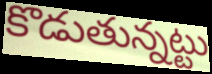
కొడుతున్నట్టు